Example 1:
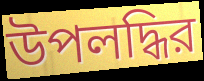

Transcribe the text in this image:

উপলদ্ধির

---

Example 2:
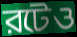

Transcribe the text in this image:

রটেও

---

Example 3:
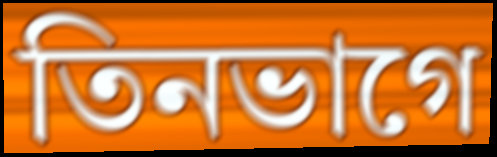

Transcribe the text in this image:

তিনভাগে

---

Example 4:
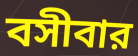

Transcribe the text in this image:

বসীবার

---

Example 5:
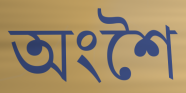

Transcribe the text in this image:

অংশৈ